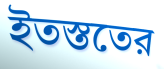
ইতস্ততের